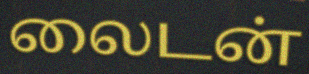
லைடன்